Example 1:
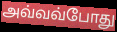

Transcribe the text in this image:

அவ்வவ்போது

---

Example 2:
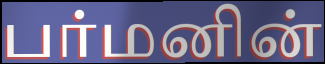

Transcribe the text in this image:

பர்மனின்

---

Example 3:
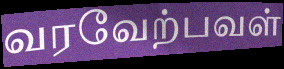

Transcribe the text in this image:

வரவேற்பவள்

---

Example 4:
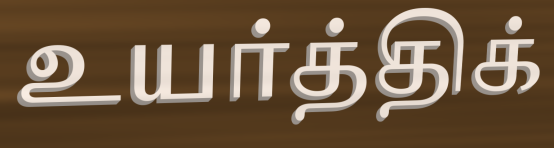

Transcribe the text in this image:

உயர்த்திக்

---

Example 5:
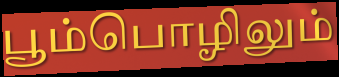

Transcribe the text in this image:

பூம்பொழிலும்